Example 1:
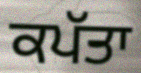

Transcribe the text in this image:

ਕਪੱਤਾ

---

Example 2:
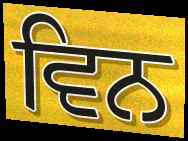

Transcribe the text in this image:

ਵਿਨ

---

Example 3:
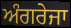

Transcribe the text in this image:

ਅੰਗਰੇਜਾ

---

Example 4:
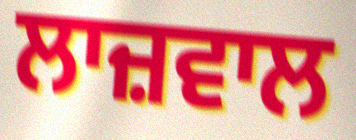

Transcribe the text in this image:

ਲਾਜ਼ਵਾਲ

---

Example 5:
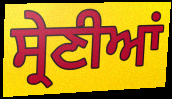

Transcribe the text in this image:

ਸ੍ਰੇਣੀਆਂ